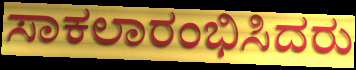
ಸಾಕಲಾರಂಭಿಸಿದರು